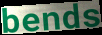
bends